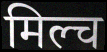
मिल्च